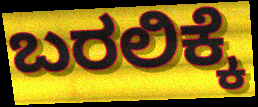
ಬರಲಿಕ್ಕೆ